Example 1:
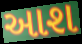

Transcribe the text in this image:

આશ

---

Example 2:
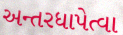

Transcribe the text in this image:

અન્તરધાપેત્વા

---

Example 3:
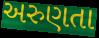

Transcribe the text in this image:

અરુણતા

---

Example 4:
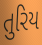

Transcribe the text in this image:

તુરિય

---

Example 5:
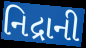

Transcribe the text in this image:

નિદ્રાની